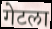
गेटला